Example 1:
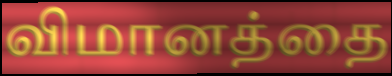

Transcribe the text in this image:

விமானத்தை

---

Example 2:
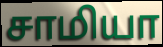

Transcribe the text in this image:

சாமியா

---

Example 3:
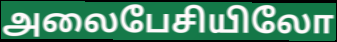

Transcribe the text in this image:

அலைபேசியிலோ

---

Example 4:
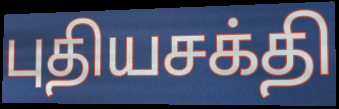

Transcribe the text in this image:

புதியசக்தி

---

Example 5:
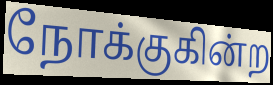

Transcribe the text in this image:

நோக்குகின்ற